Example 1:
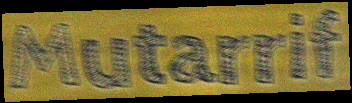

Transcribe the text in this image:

Mutarrif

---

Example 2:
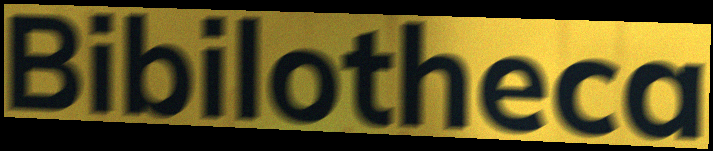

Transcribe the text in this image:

Bibilotheca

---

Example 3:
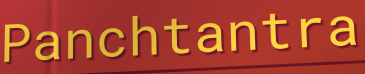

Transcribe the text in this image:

Panchtantra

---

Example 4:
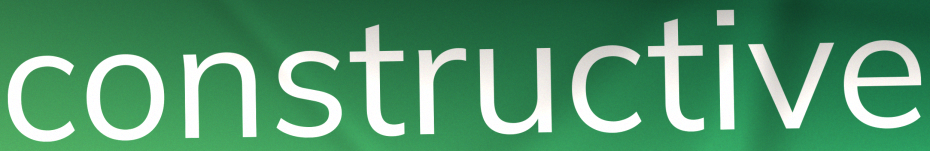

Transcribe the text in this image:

constructive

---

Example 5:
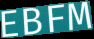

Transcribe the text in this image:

EBFM